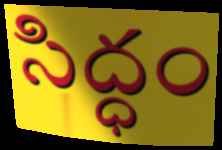
సిద్ధం